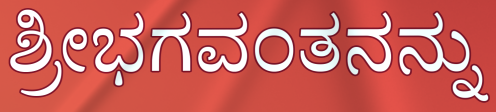
ಶ್ರೀಭಗವಂತನನ್ನು